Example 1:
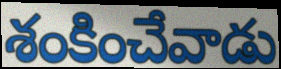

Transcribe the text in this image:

శంకించేవాడు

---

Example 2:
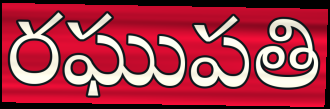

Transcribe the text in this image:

రఘుపతి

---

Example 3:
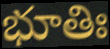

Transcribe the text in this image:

భూతిః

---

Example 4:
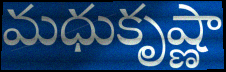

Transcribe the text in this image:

మధుకృష్ణా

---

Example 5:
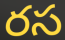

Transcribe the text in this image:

రస